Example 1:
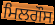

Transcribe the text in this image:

ਮਿਲਗੌਸ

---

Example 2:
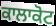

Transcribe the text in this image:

ਕਾਲਾਕੋਟ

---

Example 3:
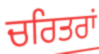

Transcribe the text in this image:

ਚਰਿਤਰਾਂ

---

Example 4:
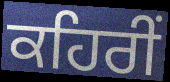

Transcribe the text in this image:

ਕਹਿਰੀਂ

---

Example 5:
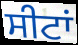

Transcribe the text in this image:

ਸੀਟਾਂ